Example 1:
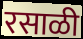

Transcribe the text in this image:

रसाळी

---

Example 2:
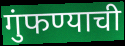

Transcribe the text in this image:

गुंफण्याची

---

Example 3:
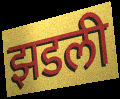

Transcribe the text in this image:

झडली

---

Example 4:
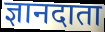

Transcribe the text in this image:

ज्ञानदाता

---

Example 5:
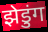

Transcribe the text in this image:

झेडुंग